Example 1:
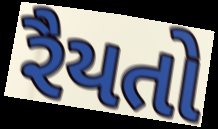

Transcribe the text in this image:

રૈયતો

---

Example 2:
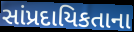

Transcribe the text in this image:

સાંપ્રદાયિકતાના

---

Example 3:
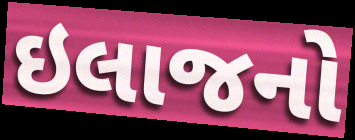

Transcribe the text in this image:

ઇલાજનો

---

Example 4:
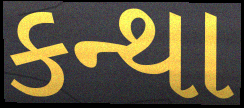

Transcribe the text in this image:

કન્થા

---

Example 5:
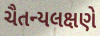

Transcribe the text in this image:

ચૈતન્યલક્ષણે